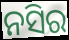
ନସିର